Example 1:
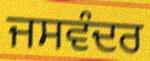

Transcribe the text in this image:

ਜਸਵੰਦਰ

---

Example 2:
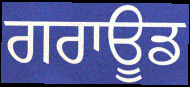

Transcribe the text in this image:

ਗਰਾਊਡ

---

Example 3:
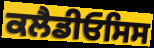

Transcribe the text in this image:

ਕਲੈਡੀਓਸਿਸ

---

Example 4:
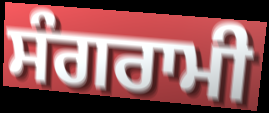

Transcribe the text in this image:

ਸੰਗਰਾਮੀ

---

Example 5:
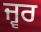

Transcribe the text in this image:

ਜ੍ਵਰ